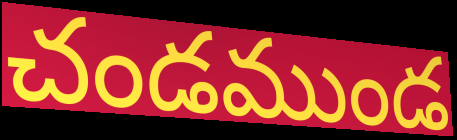
చండముండ